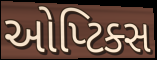
ઓપ્ટિક્સ